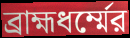
ব্রাহ্মধর্ম্মের